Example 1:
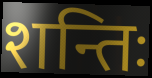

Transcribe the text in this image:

शन्तिः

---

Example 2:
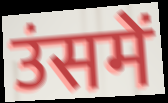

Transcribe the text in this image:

उंसमें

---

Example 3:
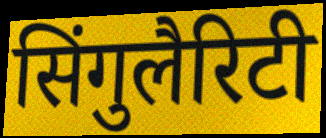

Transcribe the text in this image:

सिंगुलैरिटी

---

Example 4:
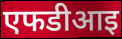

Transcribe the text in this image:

एफडीआइ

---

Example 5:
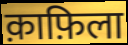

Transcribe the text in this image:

क़ाफ़िला